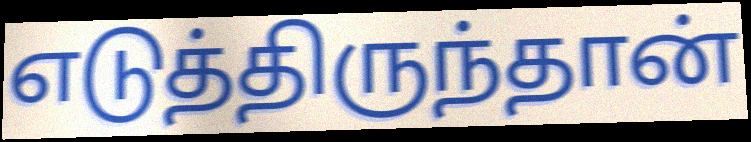
எடுத்திருந்தான்